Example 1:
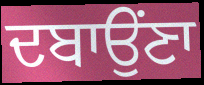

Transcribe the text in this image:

ਦਬਾਉਂਣਾ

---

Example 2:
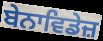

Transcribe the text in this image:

ਬੇਨਾਵਿਡੇਜ਼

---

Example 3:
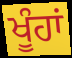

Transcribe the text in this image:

ਖੂੰਹਾਂ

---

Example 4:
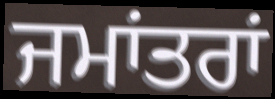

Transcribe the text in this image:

ਜਮਾਂਤਰਾਂ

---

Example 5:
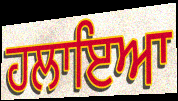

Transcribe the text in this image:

ਹਲਾਇਆ